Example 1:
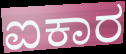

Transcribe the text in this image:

ಐಕಾರ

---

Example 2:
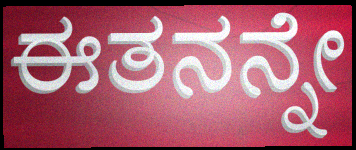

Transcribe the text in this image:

ಈತನನ್ನೇ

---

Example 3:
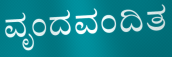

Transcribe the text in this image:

ವೃಂದವಂದಿತ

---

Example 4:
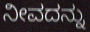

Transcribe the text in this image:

ನೀವದನ್ನು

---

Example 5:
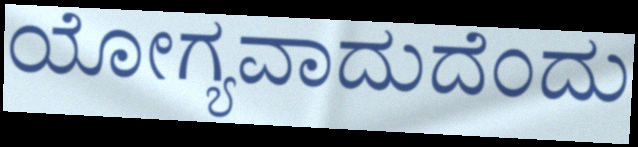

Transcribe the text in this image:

ಯೋಗ್ಯವಾದುದೆಂದು